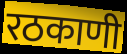
रठकाणी